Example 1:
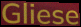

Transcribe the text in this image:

Gliese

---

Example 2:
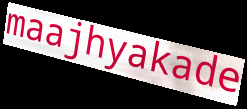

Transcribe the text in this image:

maajhyakade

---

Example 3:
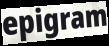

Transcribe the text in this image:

epigram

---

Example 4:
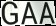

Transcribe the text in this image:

GAA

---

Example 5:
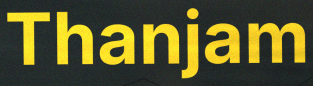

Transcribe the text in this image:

Thanjam